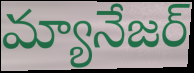
మ్యానేజర్